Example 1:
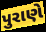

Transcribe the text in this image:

પુરાણે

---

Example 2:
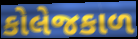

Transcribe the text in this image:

કોલેજકાળ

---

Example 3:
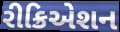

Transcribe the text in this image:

રીક્રિએશન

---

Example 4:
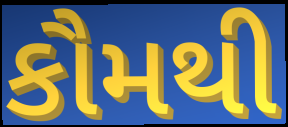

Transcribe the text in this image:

કૌમથી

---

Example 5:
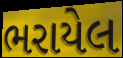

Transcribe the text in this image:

ભરાયેલ